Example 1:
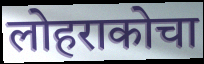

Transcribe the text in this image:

लोहराकोचा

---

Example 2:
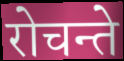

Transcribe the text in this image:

रोचन्ते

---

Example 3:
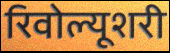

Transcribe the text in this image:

रिवोल्यूशरी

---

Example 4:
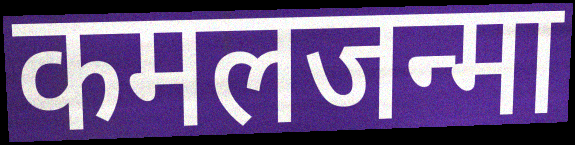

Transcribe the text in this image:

कमलजन्मा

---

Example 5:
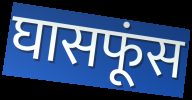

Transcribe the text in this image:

घासफूंस